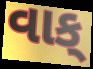
વાક્